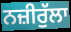
ਨਜ਼ੀਰੁੱਲਾ